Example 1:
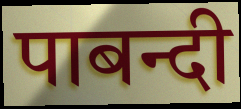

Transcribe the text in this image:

पाबन्दी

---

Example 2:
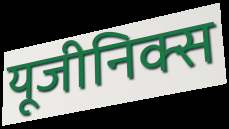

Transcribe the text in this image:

यूजीनिक्स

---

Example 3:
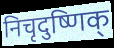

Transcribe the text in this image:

निचृदुष्णिक्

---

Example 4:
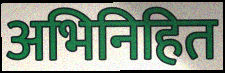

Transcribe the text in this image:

अभिनिहित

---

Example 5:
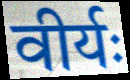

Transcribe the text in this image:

वीर्यः